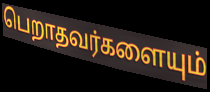
பெறாதவர்களையும்